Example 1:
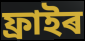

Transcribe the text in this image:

ফ্ৰাইৰ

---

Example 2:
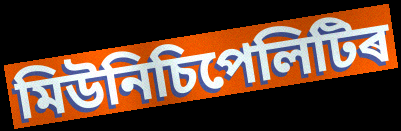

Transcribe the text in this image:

মিউনিচিপেলিটিৰ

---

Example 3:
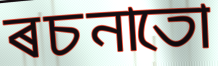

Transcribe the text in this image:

ৰচনাতো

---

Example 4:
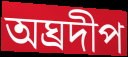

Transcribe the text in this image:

অঘ্ৰদীপ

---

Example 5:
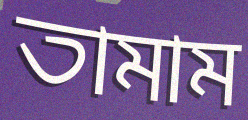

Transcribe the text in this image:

তামাম